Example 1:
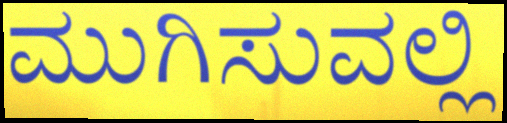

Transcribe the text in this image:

ಮುಗಿಸುವಲ್ಲಿ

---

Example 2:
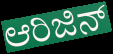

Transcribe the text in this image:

ಆರಿಜಿನ್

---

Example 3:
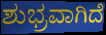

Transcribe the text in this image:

ಶುಭ್ರವಾಗಿದೆ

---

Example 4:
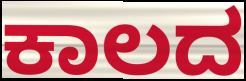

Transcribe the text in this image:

ಕಾಲದ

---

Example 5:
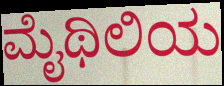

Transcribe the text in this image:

ಮೈಥಿಲಿಯ